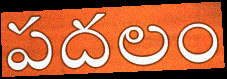
పదలం